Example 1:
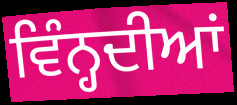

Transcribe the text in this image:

ਵਿੰਨ੍ਹਦੀਆਂ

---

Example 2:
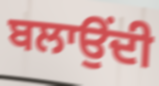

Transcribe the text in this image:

ਬਲਾਉਂਦੀ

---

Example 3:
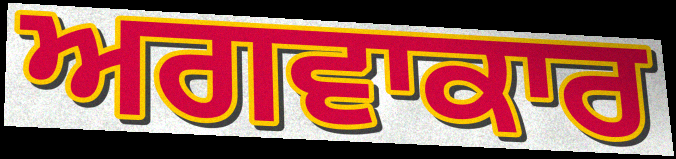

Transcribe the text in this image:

ਅਗਵਾਕਾਰ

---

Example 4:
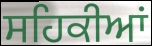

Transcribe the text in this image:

ਸਹਿਕੀਆਂ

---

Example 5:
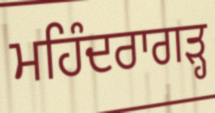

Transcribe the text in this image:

ਮਹਿੰਦਰਾਗੜ੍ਹ